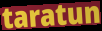
taratun